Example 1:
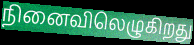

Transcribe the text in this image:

நினைவிலெழுகிறது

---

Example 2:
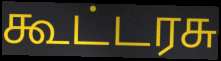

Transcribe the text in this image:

கூட்டரசு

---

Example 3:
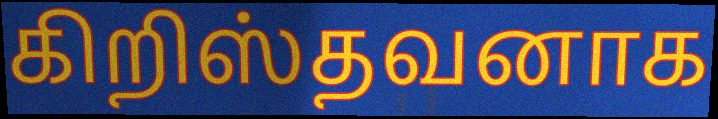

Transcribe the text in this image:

கிறிஸ்தவனாக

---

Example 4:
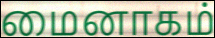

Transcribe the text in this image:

மைனாகம்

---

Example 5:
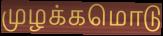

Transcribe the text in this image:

முழக்கமொடு